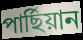
পাৰ্ছিয়ান